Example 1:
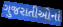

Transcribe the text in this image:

ગુજરાતીઓનાં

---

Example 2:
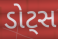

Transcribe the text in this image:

ડોટ્સ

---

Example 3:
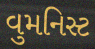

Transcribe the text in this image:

વુમનિસ્ટ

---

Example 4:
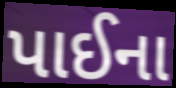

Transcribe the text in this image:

પાઈના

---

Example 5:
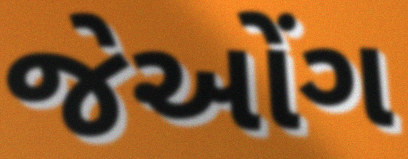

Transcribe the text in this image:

જેઓંગ